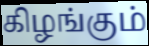
கிழங்கும்